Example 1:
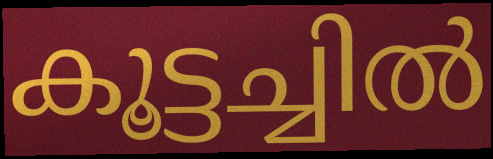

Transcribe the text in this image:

കൂട്ടച്ചിൽ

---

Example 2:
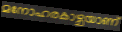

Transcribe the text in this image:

മനോഹരകാഴ്ചയാണ്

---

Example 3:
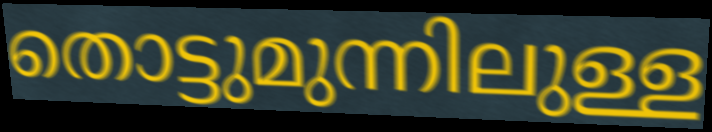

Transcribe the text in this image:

തൊട്ടുമുന്നിലുള്ള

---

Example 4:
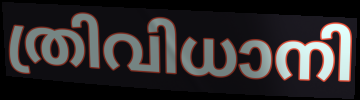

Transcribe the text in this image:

ത്രിവിധാനി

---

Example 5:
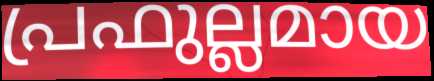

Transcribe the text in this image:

പ്രഫുല്ലമായ